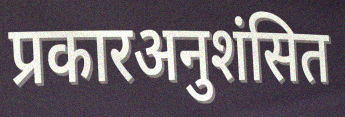
प्रकारअनुशंसित